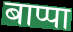
बाप्पा